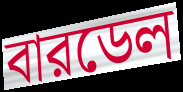
বারডেল